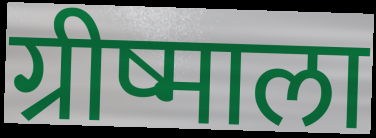
ग्रीष्माला